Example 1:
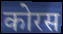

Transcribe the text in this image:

कोरस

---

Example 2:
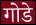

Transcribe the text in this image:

गोडे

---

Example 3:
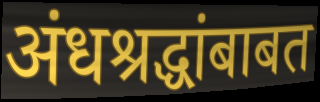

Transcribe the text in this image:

अंधश्रद्धांबाबत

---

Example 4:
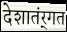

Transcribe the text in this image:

देशातंर्गत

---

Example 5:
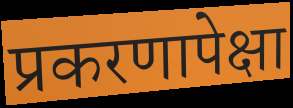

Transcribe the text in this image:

प्रकरणापेक्षा